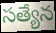
సత్యేన